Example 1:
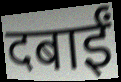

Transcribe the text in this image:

दबाईं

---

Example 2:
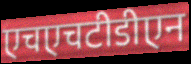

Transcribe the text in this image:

एचएचटीडीएन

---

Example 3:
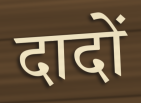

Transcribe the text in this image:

दादों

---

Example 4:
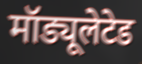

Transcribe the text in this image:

मॉड्यूलेटेड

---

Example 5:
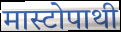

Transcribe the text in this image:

मास्टोपाथी